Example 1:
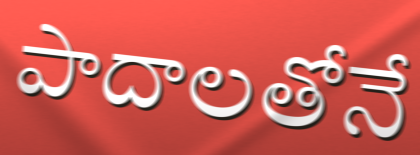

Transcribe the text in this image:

పాదాలతోనే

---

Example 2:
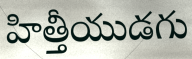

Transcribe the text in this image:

హిత్తీయుడగు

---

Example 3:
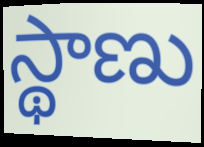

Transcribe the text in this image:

స్థాణు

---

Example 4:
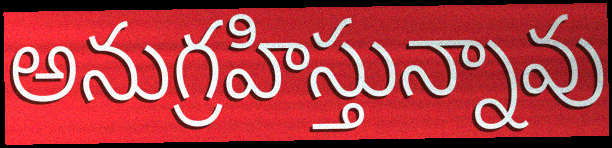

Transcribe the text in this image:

అనుగ్రహిస్తున్నావు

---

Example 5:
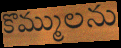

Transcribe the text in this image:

కొమ్ములను